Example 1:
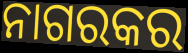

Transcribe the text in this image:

ନାଗରକର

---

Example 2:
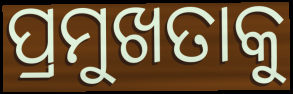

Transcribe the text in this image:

ପ୍ରମୁଖତାକୁ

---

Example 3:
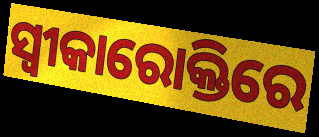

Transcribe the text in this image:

ସ୍ୱୀକାରୋକ୍ତିରେ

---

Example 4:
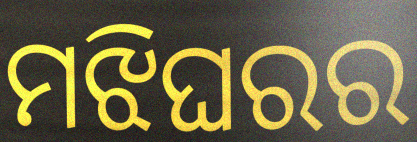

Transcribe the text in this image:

ମଝିଘରର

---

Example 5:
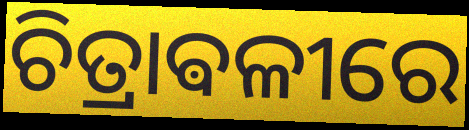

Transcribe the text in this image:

ଚିତ୍ରାଵଳୀରେ